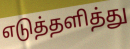
எடுத்தளித்து